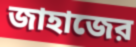
জাহাজের